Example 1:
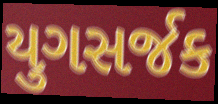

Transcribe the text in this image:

યુગસર્જક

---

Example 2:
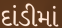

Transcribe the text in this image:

દાંડીમાં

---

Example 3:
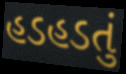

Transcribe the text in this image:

હડહડતું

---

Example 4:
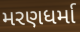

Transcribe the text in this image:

મરણધર્મા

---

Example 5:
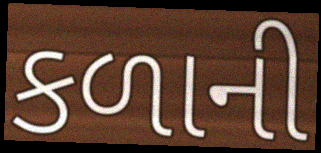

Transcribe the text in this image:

કળાની